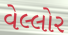
વેલ્લોર